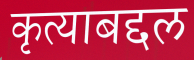
कृत्याबद्दल